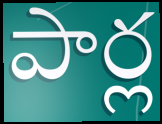
పార్ల